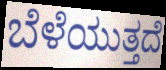
ಬೆಳೆಯುತ್ತದೆ